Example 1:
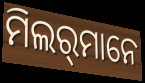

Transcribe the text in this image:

ମିଲର୍‌ମାନେ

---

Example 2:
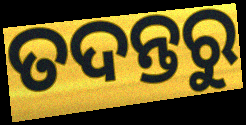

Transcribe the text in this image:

ତଦନ୍ତରୁ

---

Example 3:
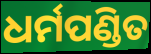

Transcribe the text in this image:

ଧର୍ମପଣ୍ଡିତ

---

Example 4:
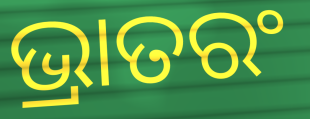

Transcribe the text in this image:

ଭ୍ରାତରଂ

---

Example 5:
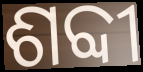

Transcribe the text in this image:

ଶବ୍ଦୀ